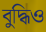
বুদ্ধিও